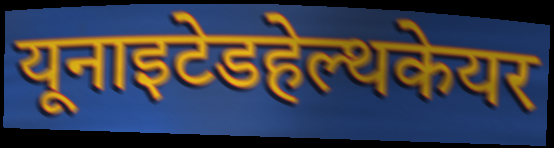
यूनाइटेडहेल्थकेयर